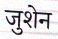
जुशेन